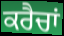
ਕਰੈਚਾਂ